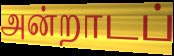
அன்றாடப்